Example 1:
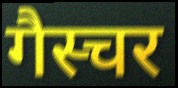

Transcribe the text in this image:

गैस्चर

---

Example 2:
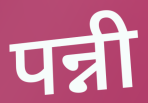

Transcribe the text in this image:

पन्नी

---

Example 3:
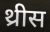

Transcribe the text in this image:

थ्रीस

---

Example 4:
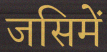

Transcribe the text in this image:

जसिमें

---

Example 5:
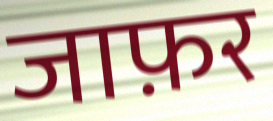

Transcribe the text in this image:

जाफ़र